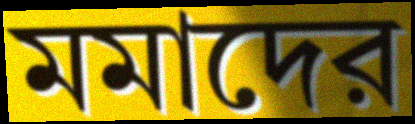
মমাদের